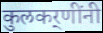
कुलकर्णींनी